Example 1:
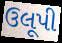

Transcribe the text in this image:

ઉલૂપી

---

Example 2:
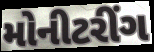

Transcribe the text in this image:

મોનીટરીંગ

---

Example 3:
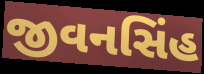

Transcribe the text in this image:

જીવનસિંહ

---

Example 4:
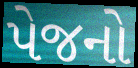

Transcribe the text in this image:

પેજનો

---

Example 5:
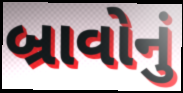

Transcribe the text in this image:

બ્રાવોનું